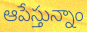
ఆపేస్తున్నాం